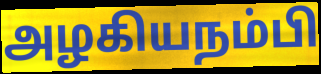
அழகியநம்பி